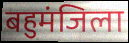
बहुमंजिला